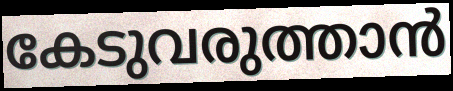
കേടുവരുത്താൻ